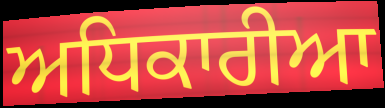
ਅਧਿਕਾਰੀਆ